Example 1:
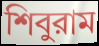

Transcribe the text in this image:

শিবুরাম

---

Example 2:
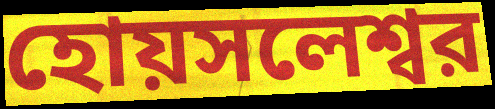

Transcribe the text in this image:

হোয়সলেশ্বর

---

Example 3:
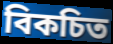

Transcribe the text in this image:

বিকচিত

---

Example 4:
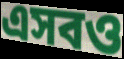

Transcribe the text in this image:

এসবও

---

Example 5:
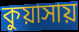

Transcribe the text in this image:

কুয়াসায়